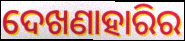
ଦେଖଣାହାରିର